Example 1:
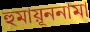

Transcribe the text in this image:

হুমায়ূননামা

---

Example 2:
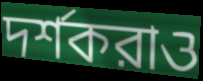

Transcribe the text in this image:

দর্শকরাও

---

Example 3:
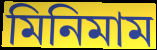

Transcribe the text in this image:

মিনিমাম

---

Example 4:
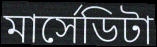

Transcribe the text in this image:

মার্সেডিটা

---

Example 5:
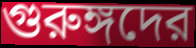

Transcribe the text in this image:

গুরুঙ্গদের